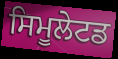
ਸਿਮੂਲੇਟਡ